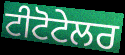
ਟੀਟੋਟੇਲਰ